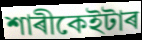
শাৰীকেইটাৰ